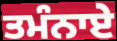
ਤਮੰਨਾਏ